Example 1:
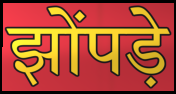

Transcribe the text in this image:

झोंपड़े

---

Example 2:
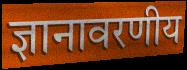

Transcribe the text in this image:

ज्ञानावरणीय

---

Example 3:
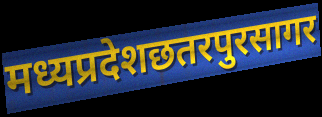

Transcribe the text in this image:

मध्यप्रदेशछतरपुरसागर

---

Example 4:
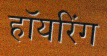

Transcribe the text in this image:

हॉयरिंग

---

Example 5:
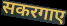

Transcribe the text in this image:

सकरगाए